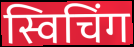
स्विचिंग